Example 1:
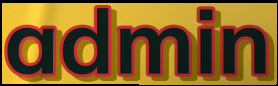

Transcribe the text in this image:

admin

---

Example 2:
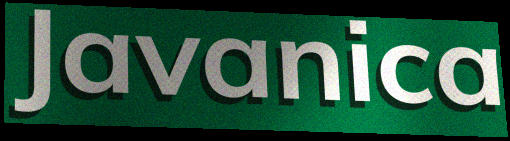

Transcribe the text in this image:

Javanica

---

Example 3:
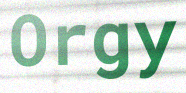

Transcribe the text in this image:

Orgy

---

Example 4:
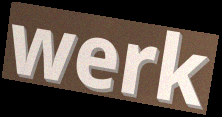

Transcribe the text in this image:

werk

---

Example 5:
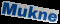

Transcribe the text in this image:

Mukne